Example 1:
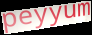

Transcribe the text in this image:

peyyum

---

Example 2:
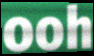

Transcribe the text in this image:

ooh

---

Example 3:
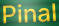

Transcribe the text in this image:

Pinal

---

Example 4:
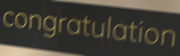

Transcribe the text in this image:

congratulation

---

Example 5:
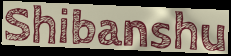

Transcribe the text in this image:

Shibanshu